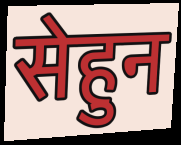
सेहुन